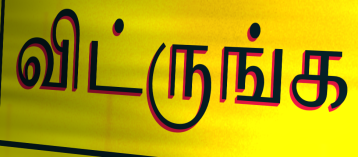
விட்ருங்க